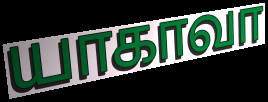
யாகாவா